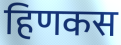
हिणकस